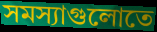
সমস্যাগুলোতে